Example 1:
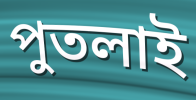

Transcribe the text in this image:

পুতলাই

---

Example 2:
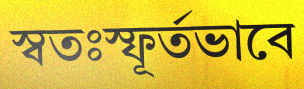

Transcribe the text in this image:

স্বতঃস্ফূৰ্তভাবে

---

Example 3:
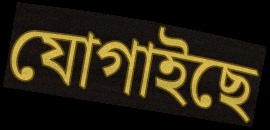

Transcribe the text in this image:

যোগাইছে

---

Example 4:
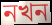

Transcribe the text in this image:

নখন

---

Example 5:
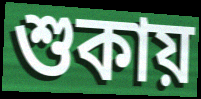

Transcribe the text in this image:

শুকায়